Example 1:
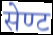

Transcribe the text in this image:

सेण्ट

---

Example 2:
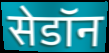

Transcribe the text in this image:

सेडॉन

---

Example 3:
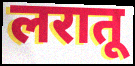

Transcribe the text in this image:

लरातू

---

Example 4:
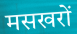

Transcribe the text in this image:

मसखरों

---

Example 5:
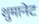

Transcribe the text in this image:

शुमानेट